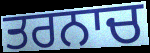
ਤਰਨਾਚ